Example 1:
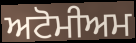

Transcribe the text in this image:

ਅਟੋਮੀਅਮ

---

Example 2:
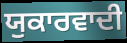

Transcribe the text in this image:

ਯੁਕਾਰਵਾਦੀ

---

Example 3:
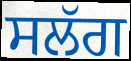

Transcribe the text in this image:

ਸਲੱਗ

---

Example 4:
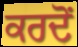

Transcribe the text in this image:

ਕਰਦੋਂ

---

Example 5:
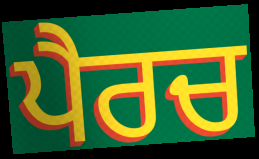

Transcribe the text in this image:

ਪੈਰਚ